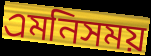
এমনিসময়